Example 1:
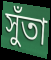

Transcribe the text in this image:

সুঁতা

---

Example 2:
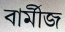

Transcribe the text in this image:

বাৰ্মীজ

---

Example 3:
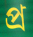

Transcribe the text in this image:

প্ৰ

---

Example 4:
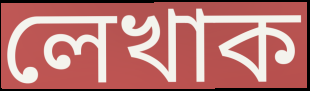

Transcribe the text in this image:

লেখাক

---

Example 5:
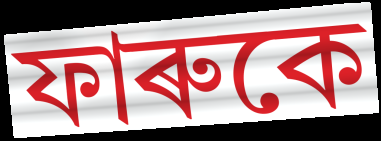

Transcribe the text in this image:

ফাৰুকে